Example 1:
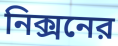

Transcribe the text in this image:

নিক্সনের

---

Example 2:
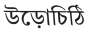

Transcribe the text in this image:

উড়োচিঠি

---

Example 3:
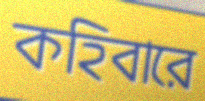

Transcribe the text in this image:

কহিবারে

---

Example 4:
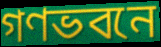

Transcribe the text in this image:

গণভবনে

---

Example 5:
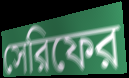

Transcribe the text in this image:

সেরিফের